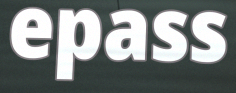
epass